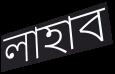
লাহাব